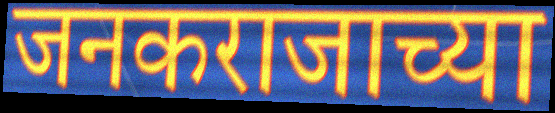
जनकराजाच्या